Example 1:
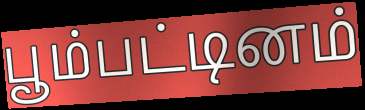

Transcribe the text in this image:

பூம்பட்டினம்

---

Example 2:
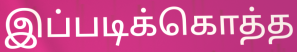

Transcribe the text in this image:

இப்படிக்கொத்த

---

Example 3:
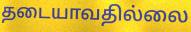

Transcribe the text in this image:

தடையாவதில்லை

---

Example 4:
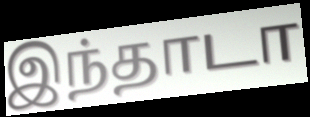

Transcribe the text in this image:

இந்தாடா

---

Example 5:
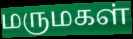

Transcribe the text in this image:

மருமகள்